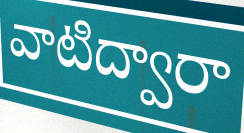
వాటిద్వారా